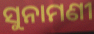
ସୁନାମଣୀ